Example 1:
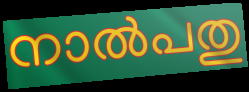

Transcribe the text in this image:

നാൽപതു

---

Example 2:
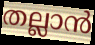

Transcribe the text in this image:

തല്ലാൻ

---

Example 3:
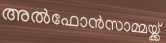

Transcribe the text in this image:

അൽഫോൻസാമ്മയ്ക്ക്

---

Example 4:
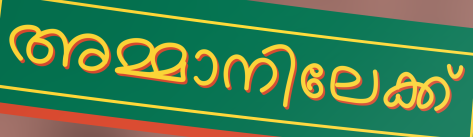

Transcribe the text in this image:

അമ്മാനിലേക്ക്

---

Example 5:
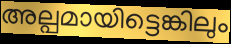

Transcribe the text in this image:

അല്പമായിട്ടെങ്കിലും